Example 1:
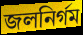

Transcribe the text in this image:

জলনির্গম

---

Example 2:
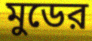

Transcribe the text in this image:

মুডের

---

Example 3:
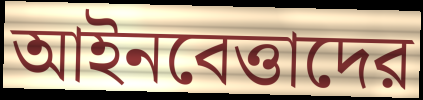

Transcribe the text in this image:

আইনবেত্তাদের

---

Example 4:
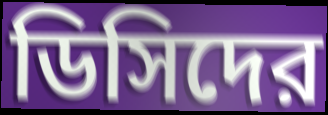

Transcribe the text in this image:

ডিসিদের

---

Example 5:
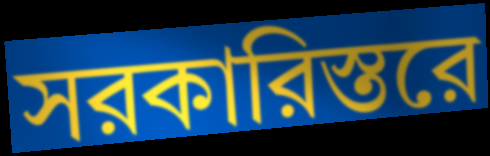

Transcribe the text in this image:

সরকারিস্তরে